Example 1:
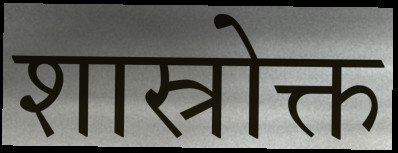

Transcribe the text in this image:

शास्रोक्त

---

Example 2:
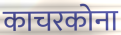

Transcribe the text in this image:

काचरकोना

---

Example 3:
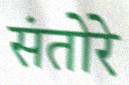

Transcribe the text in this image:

संतोरे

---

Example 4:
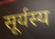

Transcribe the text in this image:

सूर्यस्य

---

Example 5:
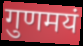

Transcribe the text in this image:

गुणमयं